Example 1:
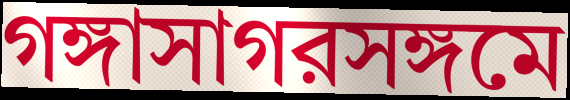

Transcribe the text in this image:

গঙ্গাসাগরসঙ্গমে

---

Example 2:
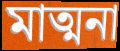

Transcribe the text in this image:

মাত্মনা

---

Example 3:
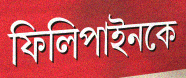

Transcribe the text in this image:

ফিলিপাইনকে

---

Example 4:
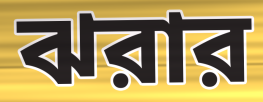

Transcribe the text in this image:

ঝরার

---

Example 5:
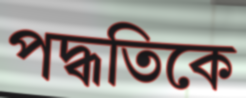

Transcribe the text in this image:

পদ্ধতিকে